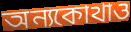
অন্যকোথাও